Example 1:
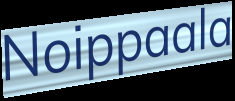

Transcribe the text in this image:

Noippaala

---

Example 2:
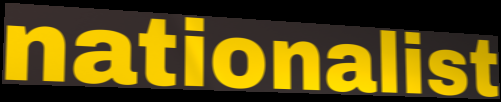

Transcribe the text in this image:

nationalist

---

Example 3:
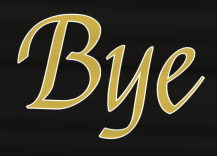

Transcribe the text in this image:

Bye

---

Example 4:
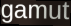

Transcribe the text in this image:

gamut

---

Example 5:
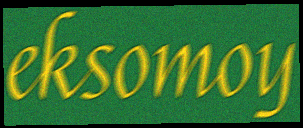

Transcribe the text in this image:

eksomoy